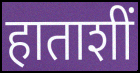
हाताशीं